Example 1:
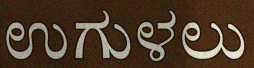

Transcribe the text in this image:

ಉಗುಳಲು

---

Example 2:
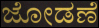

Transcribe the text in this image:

ಜೋಡಣೆ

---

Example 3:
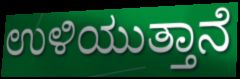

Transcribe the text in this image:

ಉಳಿಯುತ್ತಾನೆ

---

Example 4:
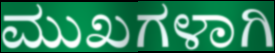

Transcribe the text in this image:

ಮುಖಗಳಾಗಿ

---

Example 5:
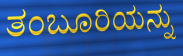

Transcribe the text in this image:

ತಂಬೂರಿಯನ್ನು